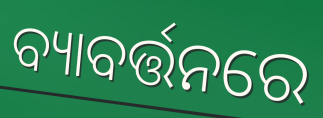
ବ୍ୟାବର୍ତ୍ତନରେ